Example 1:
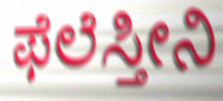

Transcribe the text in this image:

ಫೆಲೆಸ್ತೀನಿ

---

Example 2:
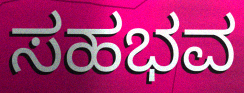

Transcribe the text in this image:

ಸಹಭವ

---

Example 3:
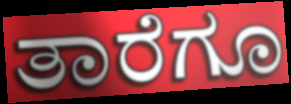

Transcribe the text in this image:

ತಾರೆಗೂ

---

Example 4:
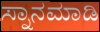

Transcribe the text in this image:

ಸ್ನಾನಮಾಡಿ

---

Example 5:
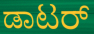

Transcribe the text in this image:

ಡಾಟರ್